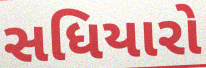
સધિયારો